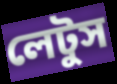
লেটুস